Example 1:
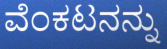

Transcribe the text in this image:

ವೆಂಕಟನನ್ನು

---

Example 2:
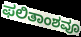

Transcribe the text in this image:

ಫಲಿತಾಂಶವೂ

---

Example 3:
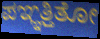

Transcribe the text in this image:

ಪಞ್ಞತ್ತಿತೋ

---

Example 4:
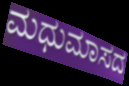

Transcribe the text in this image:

ಮಧುಮಾಸದ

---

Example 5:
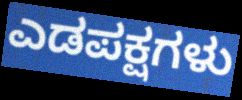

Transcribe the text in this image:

ಎಡಪಕ್ಷಗಳು